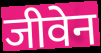
जीवेन